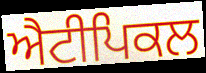
ਐਟੀਪਿਕਲ